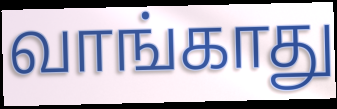
வாங்காது